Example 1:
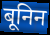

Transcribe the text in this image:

बूनिन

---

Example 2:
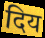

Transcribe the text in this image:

दिय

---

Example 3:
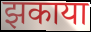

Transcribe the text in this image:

झकाया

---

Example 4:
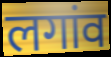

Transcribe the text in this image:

लगांव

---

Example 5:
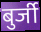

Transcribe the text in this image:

बुर्जी